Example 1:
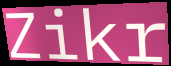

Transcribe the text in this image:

Zikr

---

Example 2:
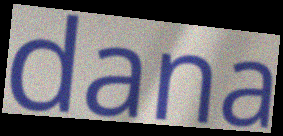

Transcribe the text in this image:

dana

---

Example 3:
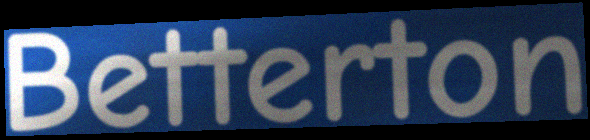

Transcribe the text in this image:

Betterton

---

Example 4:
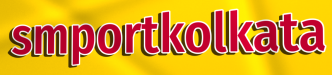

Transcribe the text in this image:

smportkolkata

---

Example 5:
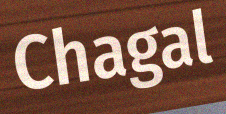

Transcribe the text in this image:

Chagal